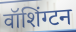
वॉशिंग्टन